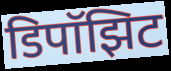
डिपॉझिट